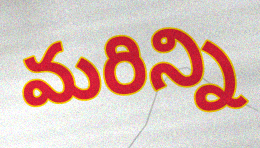
మరిన్ని